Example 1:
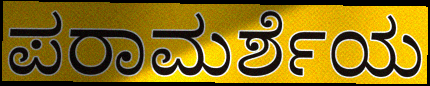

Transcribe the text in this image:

ಪರಾಮರ್ಶೆಯ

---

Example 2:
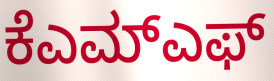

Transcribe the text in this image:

ಕೆಎಮ್ಎಫ್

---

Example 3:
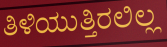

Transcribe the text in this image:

ತಿಳಿಯುತ್ತಿರಲಿಲ್ಲ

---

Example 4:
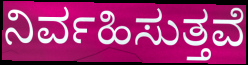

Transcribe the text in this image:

ನಿರ್ವಹಿಸುತ್ತವೆ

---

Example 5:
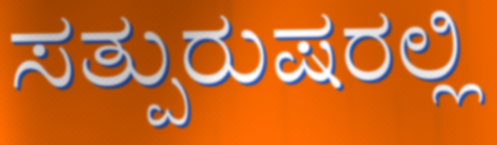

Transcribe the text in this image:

ಸತ್ಪುರುಷರಲ್ಲಿ